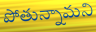
పోతున్నామని